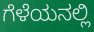
ಗೆಳೆಯನಲ್ಲಿ